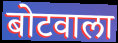
बोटवाला